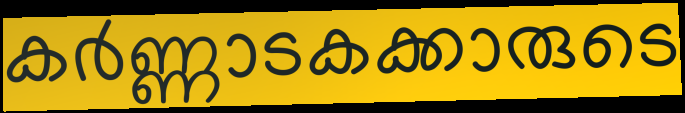
കർണ്ണാടകക്കാരുടെ